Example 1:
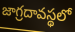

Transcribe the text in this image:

జాగ్రదావస్థలో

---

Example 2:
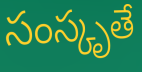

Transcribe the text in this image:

సంస్కృతే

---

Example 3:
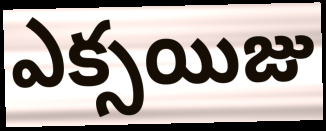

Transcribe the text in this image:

ఎక్సయిజు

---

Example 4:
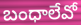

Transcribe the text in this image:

బంధాలేవో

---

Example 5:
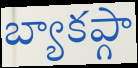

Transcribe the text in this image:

బ్యాకప్గా